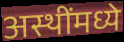
अस्थींमध्ये